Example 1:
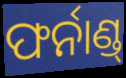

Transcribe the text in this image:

ଫର୍ନାଣ୍ଡ୍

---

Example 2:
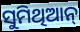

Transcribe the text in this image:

ସୁମିଥିଆନ୍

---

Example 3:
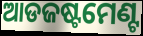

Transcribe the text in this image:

ଆଡଜଷ୍ଟମେଣ୍ଟ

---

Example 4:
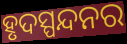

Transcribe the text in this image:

ହୃଦସ୍ପନ୍ଦନର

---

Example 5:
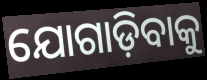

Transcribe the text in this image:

ଯୋଗାଡ଼ିବାକୁ